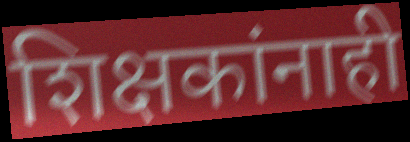
शिक्षकांनाही